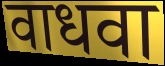
वाधवा